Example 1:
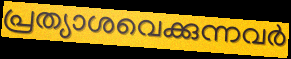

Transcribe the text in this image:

പ്രത്യാശവെക്കുന്നവർ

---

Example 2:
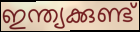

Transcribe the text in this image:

ഇന്ത്യക്കുണ്ട്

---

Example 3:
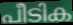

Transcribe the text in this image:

പീടിക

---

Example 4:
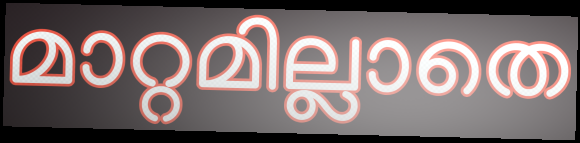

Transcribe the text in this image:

മാറ്റമില്ലാതെ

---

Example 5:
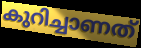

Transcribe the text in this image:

കുറിച്ചാണത്